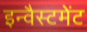
इन्वैस्टमेंट